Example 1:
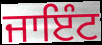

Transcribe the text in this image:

ਜਾਇੰਟ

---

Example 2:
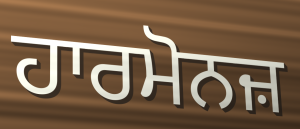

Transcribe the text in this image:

ਹਾਰਮੋਨਜ਼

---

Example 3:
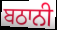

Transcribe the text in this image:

ਬਠਾਨੀ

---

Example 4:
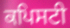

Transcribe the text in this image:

ਕਪਿਸਟੀ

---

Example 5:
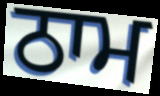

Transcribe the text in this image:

ਠਾਮ